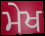
ਮੇਖ